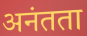
अनंतता